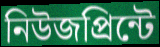
নিউজপ্রিন্টে